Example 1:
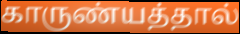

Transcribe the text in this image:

காருண்யத்தால்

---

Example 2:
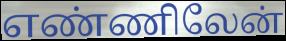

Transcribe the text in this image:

எண்ணிலேன்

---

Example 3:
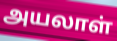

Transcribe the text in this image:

அயலாள்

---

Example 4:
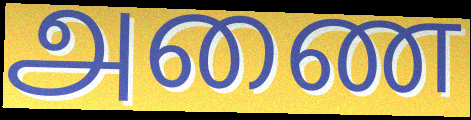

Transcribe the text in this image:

அணை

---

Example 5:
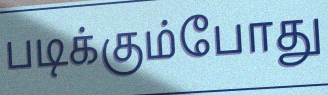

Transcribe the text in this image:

படிக்கும்போது